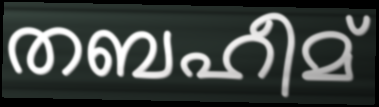
തബഹീമ്